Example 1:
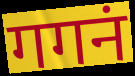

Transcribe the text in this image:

गगनं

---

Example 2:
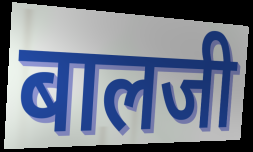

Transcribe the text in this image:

बालजी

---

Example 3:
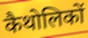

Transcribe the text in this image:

कैथोलिकों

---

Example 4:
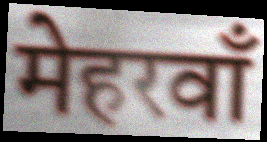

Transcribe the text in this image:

मेहरवाँ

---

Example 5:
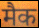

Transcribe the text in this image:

मैक